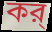
কর্